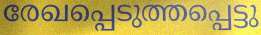
രേഖപ്പെടുത്തപ്പെട്ടു